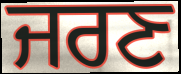
ਜਰਣ